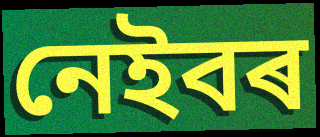
নেইবৰ